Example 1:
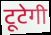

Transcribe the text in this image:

टूटेगी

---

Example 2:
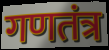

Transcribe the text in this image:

गणतंत्र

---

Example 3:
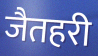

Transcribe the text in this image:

जैतहरी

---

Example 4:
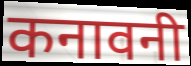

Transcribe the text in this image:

कनावनी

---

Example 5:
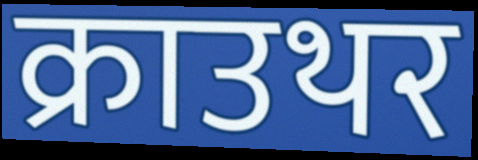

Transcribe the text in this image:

क्राउथर